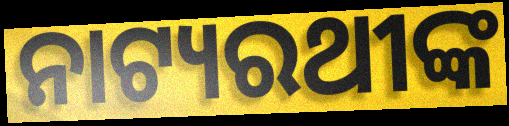
ନାଟ୍ୟରଥୀଙ୍କ